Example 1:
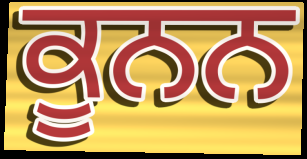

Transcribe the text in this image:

ਕੂਨਨ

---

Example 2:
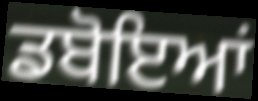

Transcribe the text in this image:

ਡਬੋਇਆਂ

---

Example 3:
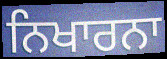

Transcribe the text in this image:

ਨਿਖਾਰਨਾ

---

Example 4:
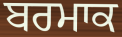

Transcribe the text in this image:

ਬਰਮਾਕ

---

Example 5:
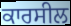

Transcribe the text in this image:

ਕਾਰਸੀਲ